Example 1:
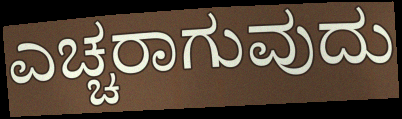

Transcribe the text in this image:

ಎಚ್ಚರಾಗುವುದು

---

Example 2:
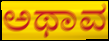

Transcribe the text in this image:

ಅಥಾವ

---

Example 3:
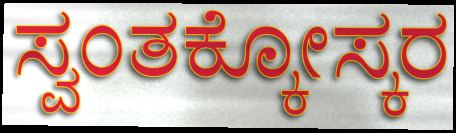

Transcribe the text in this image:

ಸ್ವಂತಕ್ಕೋಸ್ಕರ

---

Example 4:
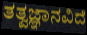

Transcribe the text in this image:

ತತ್ವಜ್ಞಾನವಿದೆ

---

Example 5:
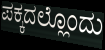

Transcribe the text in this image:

ಪಕ್ಕದಲ್ಲೊಂದು